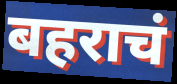
बहराचं